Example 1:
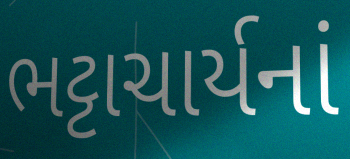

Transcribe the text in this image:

ભટ્ટાચાર્યનાં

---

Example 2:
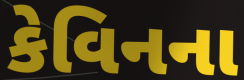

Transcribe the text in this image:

કેવિનના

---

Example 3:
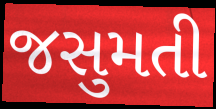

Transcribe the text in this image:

જસુમતી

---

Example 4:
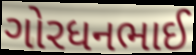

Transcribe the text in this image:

ગોરધનભાઈ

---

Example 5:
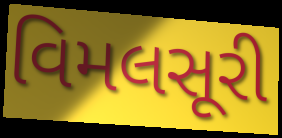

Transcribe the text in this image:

વિમલસૂરી